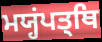
ਮਯ੍ਹਂਪਤ੍ਥਿ